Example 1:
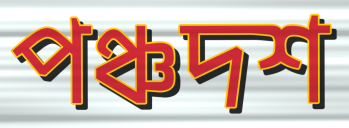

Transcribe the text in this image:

পঞ্চদশ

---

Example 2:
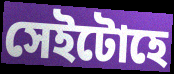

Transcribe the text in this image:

সেইটোহে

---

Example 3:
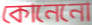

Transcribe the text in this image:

কোনেনো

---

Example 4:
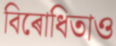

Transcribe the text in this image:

বিৰোধিতাও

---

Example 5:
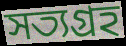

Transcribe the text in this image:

সত্যগ্ৰহ